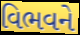
વિભવને